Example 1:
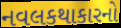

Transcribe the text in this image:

નવલકથાકારનો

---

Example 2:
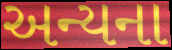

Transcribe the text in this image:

અન્યના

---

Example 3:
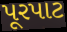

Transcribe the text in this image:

પૂરપાટ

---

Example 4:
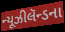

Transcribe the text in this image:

ન્યૂઝીલૅન્ડના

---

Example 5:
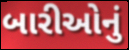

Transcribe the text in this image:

બારીઓનું